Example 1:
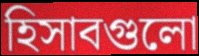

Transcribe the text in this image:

হিসাবগুলো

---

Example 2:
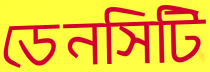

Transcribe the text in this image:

ডেনসিটি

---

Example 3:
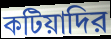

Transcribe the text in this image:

কটিয়াদির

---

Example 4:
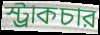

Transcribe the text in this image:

স্ট্রাকচার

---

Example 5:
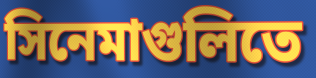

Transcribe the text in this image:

সিনেমাগুলিতে